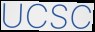
UCSC